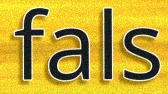
fals